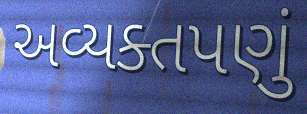
અવ્યક્તપણું